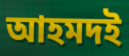
আহমদই